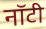
नॉटी